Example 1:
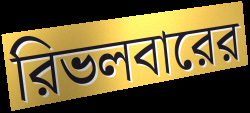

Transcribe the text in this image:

রিভলবারের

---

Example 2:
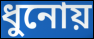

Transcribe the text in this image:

ধুনোয়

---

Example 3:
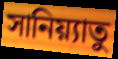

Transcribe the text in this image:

সানিয়্যাতু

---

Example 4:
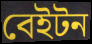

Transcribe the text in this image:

বেইটন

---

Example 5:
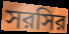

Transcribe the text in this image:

সরসির